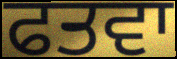
ਫਤਵਾ